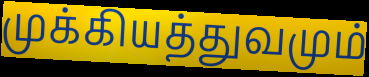
முக்கியத்துவமும்